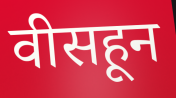
वीसहून